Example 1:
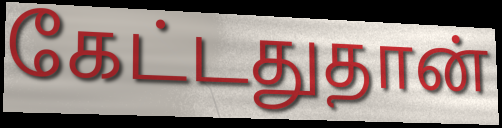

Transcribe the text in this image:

கேட்டதுதான்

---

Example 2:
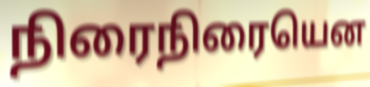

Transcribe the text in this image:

நிரைநிரையென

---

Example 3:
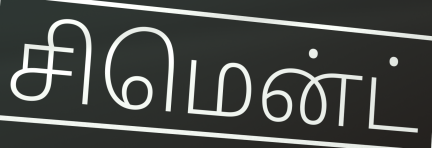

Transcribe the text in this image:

சிமென்ட்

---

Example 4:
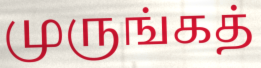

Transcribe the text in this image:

முருங்கத்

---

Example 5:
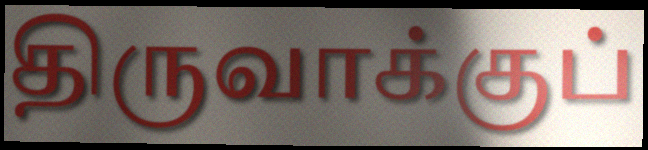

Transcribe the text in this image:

திருவாக்குப்